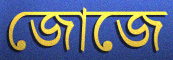
জোজে